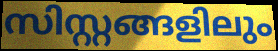
സിസ്റ്റങ്ങളിലും